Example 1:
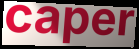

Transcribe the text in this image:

caper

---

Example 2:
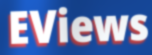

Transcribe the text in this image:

EViews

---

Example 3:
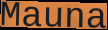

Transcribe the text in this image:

Mauna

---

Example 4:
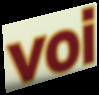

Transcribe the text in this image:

voi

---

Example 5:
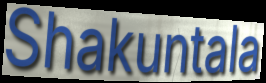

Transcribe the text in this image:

Shakuntala